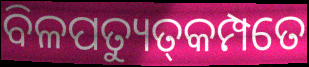
ବିଳପତ୍ୟୁତ୍‌କମ୍ପତେ